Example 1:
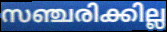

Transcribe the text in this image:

സഞ്ചരിക്കില്ല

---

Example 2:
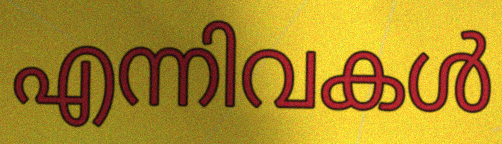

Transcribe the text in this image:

എന്നിവകൾ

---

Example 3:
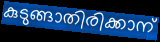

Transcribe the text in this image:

കുടുങ്ങാതിരിക്കാന്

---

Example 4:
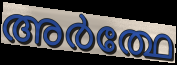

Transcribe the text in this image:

അർത്ഥേ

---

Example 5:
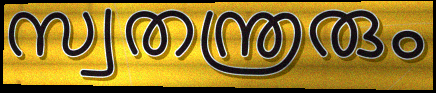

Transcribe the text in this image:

സ്വതന്ത്രരും